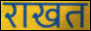
राखत